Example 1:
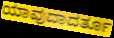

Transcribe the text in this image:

ಯಾವುದಾದರ್ತೂ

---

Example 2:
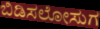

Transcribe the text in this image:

ಬಿಡಿಸಲೋಸುಗ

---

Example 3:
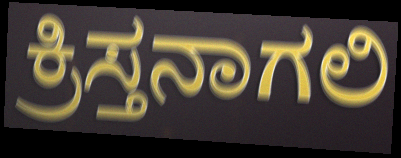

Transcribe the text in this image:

ಕ್ರಿಸ್ತನಾಗಲಿ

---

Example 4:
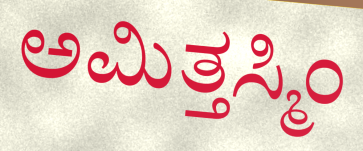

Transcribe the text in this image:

ಅಮಿತ್ತಸ್ಮಿಂ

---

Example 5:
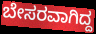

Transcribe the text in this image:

ಬೇಸರವಾಗಿದ್ದ